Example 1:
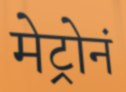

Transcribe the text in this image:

मेट्रोनं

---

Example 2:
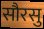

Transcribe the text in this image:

सौरसु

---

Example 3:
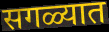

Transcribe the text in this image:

सगळ्यात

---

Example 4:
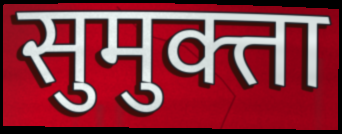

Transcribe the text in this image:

सुमुक्ता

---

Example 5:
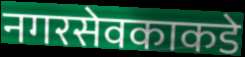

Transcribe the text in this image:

नगरसेवकाकडे